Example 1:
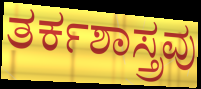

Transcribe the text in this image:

ತರ್ಕಶಾಸ್ತ್ರವು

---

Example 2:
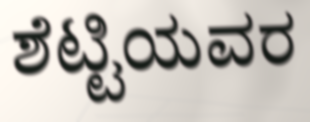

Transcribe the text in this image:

ಶೆಟ್ಟಿಯವರ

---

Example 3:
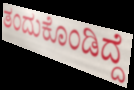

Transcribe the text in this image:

ತಂದುಕೊಂಡಿದ್ದೆ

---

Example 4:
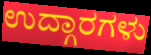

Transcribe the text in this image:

ಉದ್ಗಾರಗಳು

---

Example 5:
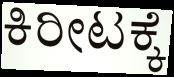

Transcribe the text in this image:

ಕಿರೀಟಕ್ಕೆ